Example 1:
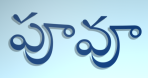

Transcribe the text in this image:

పూవూ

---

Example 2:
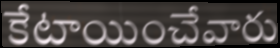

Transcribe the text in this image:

కేటాయించేవారు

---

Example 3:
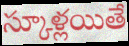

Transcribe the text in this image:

స్కూళ్లయితే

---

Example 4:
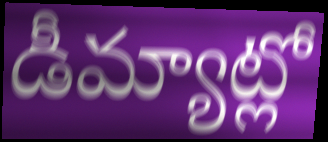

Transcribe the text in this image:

డీమ్యాట్లో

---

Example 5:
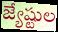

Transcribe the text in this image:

జ్యేష్టుల